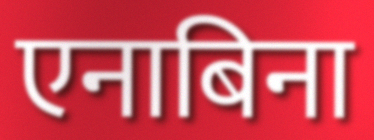
एनाबिना